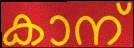
കാന്